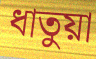
ধাতুয়া